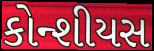
કોન્શીયસ